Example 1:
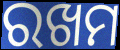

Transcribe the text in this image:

ରଖମ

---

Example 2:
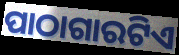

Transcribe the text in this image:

ପାଠାଗାରଟିଏ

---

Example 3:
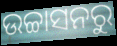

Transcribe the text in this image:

ଉଚ୍ଚାସନରୁ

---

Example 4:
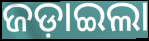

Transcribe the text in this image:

ଜଡ଼ାଇଲା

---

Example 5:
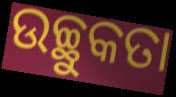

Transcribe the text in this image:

ଉଚ୍ଛୁକତା